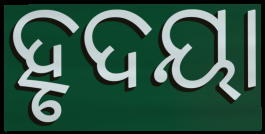
ହୃଦୟା